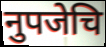
नुपजेचि